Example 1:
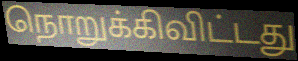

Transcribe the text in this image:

நொறுக்கிவிட்டது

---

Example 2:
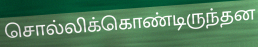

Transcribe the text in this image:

சொல்லிக்கொண்டிருந்தன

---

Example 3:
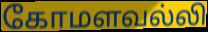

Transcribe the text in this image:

கோமளவல்லி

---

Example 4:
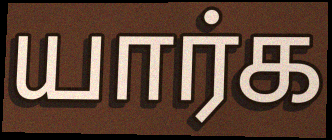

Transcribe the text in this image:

யார்க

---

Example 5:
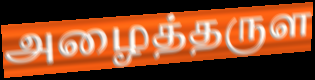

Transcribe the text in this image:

அழைத்தருள